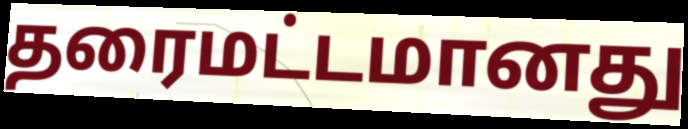
தரைமட்டமானது